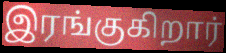
இரங்குகிறார்